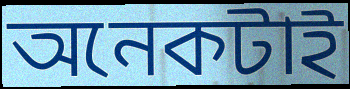
অনেকটাই